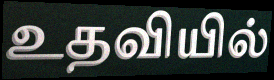
உதவியில்